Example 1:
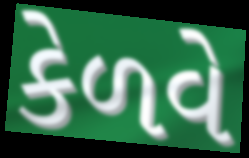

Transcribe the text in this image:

કેળવે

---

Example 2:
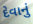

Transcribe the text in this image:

દેવાનું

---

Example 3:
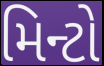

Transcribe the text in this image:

મિન્ટો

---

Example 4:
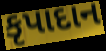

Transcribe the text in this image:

કૃપાદાન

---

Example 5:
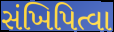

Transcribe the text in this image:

સંખિપિત્વા